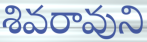
శివరావుని